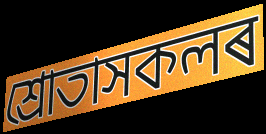
শ্ৰোতাসকলৰ